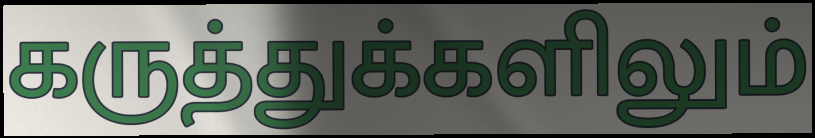
கருத்துக்களிலும்